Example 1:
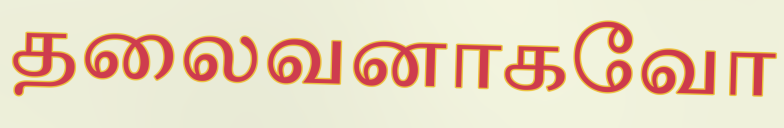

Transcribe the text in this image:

தலைவனாகவோ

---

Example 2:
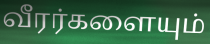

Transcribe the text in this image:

வீரர்களையும்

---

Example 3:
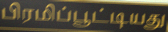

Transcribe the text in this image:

பிரமிப்பூட்டியது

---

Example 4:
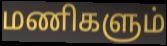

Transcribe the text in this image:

மணிகளும்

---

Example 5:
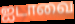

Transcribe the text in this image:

ஐடாவை